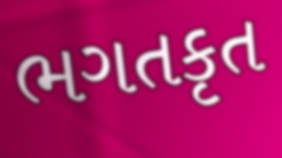
ભગતકૃત